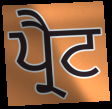
ਪ੍ਰੈਟ